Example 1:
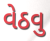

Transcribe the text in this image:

વેઠવુ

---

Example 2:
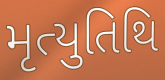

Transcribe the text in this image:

મૃત્યુતિથિ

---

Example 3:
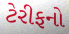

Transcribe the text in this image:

ટેરીફનો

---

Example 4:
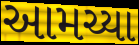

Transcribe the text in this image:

આમચ્યા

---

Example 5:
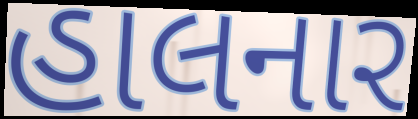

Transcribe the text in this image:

હાલનાર